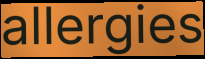
allergies